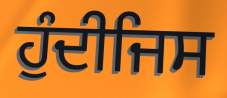
ਹੁੰਦੀਜਿਸ